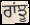
ਰਾਂਝੂ